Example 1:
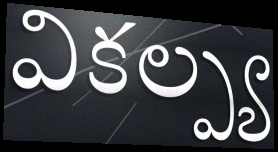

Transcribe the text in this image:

వికల్ప్య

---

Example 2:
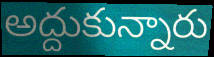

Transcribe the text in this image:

అద్దుకున్నారు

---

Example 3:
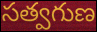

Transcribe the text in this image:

సత్వగుణ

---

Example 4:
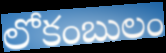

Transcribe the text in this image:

లోకంబులం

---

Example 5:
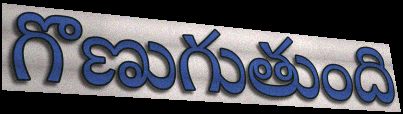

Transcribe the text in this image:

గొణుగుతుంది